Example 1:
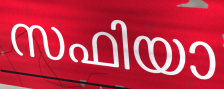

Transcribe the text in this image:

സഫിയാ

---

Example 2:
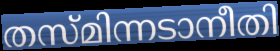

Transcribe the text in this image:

തസ്മിന്നടാനീതി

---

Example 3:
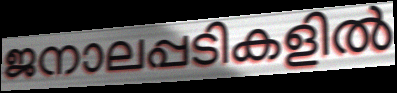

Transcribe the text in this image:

ജനാലപ്പടികളിൽ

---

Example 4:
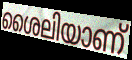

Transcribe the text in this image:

ശൈലിയാണ്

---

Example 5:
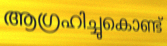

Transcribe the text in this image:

ആഗ്രഹിച്ചുകൊണ്ട്